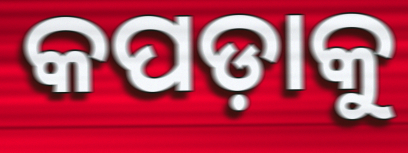
କପଡ଼ାକୁ